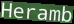
Heramb